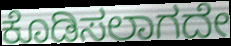
ಕೊಡಿಸಲಾಗದೇ